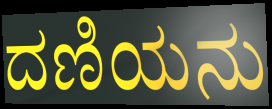
ದಣಿಯನು